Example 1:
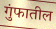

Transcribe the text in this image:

गुंफातील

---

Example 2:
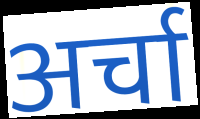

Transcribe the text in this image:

अर्चा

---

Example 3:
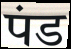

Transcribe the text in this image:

पंड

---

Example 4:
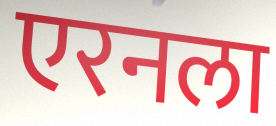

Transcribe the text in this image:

एरनला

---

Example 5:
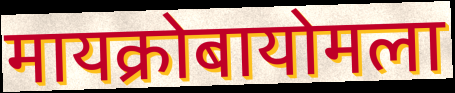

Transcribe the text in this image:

मायक्रोबायोमला